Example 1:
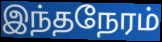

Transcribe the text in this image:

இந்தநேரம்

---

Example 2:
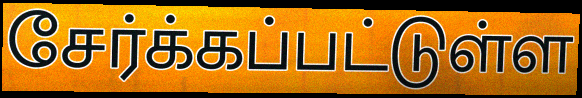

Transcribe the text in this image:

சேர்க்கப்பட்டுள்ள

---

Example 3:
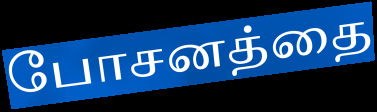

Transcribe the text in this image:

போசனத்தை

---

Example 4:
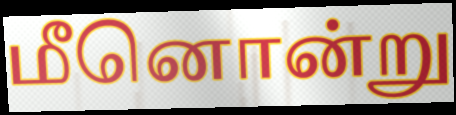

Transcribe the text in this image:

மீனொன்று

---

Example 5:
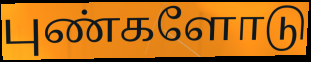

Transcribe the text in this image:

புண்களோடு